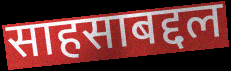
साहसाबद्दल